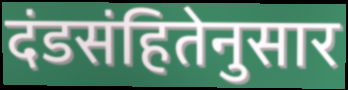
दंडसंहितेनुसार